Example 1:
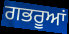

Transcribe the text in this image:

ਗਭਰੂਆਂ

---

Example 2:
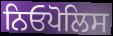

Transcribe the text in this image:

ਨਿਓਪੋਲਿਸ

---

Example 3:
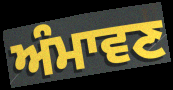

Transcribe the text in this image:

ਅੰਮਾਵਣ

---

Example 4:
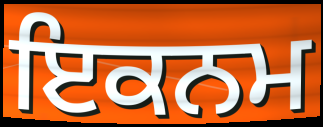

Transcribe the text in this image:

ਇਕਨਮ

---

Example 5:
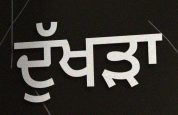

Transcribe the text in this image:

ਦੁੱਖਡ਼ਾ